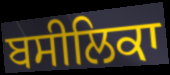
ਬਸੀਲਿਕਾ